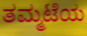
ತಮ್ಮಟೆಯ